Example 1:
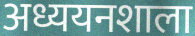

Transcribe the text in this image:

अध्ययनशाला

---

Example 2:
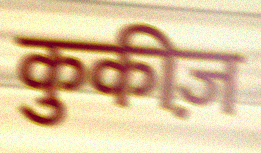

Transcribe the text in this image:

कुकीज़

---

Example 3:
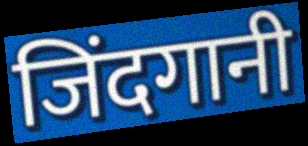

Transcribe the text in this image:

जिंदगानी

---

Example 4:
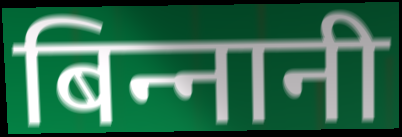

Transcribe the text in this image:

बिन्नानी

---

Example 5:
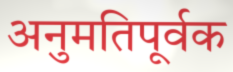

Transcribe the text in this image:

अनुमतिपूर्वक